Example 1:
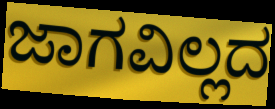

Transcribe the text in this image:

ಜಾಗವಿಲ್ಲದ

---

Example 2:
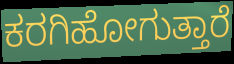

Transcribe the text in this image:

ಕರಗಿಹೋಗುತ್ತಾರೆ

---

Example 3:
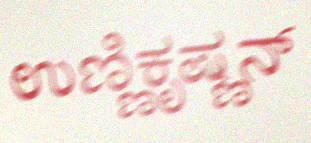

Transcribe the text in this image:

ಉಣ್ಣಿಕೃಷ್ಣನ್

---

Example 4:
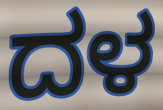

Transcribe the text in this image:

ದಳ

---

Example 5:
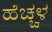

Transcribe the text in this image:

ಹೆಚ್ಚಳ